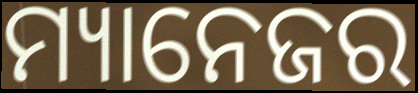
ମ୍ୟାନେଜର